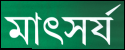
মাৎসর্য